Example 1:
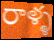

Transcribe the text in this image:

రాళ్ళ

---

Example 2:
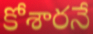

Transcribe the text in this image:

కోశారనే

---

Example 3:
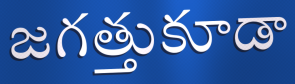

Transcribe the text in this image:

జగత్తుకూడా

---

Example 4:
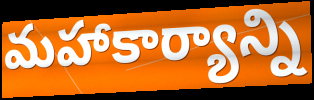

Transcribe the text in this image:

మహాకార్యాన్ని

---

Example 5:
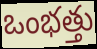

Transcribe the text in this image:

ఒంభత్తు